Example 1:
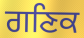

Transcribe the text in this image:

ਗਣਿਕ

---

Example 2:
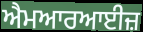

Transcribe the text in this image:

ਐਮਆਰਆਈਜ਼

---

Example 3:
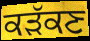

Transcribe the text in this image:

ਕੜੱਕਣ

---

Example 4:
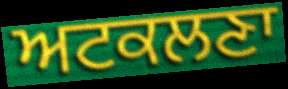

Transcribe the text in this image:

ਅਟਕਲਣਾ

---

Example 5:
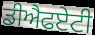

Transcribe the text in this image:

ਡੀਐਫਏਟੀ